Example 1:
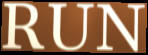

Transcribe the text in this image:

RUN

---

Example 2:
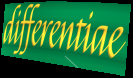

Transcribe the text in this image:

differentiae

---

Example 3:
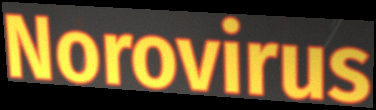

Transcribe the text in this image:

Norovirus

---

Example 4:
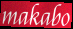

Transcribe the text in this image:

makabo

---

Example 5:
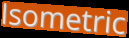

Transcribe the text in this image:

Isometric